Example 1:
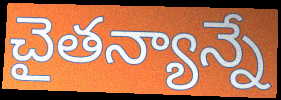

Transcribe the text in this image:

చైతన్యాన్నే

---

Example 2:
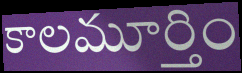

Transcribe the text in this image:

కాలమూర్తిం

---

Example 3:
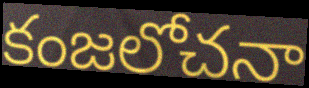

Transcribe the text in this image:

కంజలోచనా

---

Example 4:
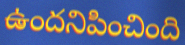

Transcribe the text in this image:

ఉందనిపించింది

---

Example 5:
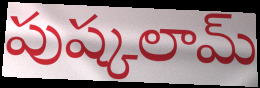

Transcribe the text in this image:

పుష్కలామ్